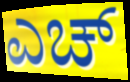
ಎಚ್